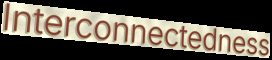
Interconnectedness